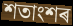
শতাংশৰ